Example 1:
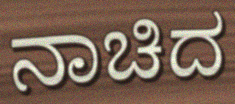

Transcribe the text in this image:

ನಾಚಿದ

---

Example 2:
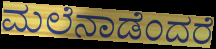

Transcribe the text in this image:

ಮಲೆನಾಡೆಂದರೆ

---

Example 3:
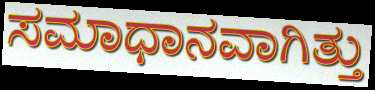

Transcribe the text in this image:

ಸಮಾಧಾನವಾಗಿತ್ತು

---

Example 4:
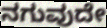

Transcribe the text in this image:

ನಗುವುದೇ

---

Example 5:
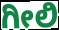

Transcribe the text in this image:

ಗೀಲಿ